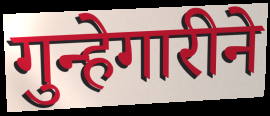
गुन्हेगारीने